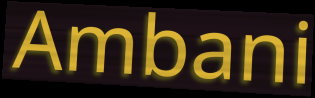
Ambani